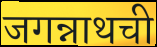
जगन्नाथची